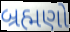
બ્રહ્મણો